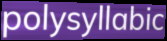
polysyllabic